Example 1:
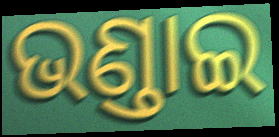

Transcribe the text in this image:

ଭଣ୍ଡାଇ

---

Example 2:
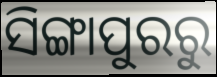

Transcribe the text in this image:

ସିଙ୍ଗାପୁରରୁ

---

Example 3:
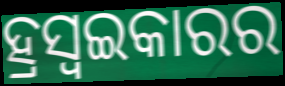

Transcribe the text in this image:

ହ୍ରସ୍ୱଇକାରର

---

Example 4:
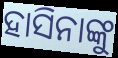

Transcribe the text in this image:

ହାସିନାଙ୍କୁ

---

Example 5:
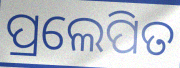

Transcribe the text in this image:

ପ୍ରଲେପିତ